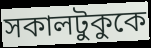
সকালটুকুকে